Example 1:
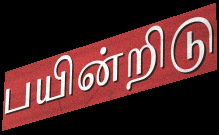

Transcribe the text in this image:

பயின்றிடு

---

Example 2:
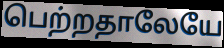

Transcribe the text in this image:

பெற்றதாலேயே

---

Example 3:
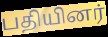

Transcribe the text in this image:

பதியினர்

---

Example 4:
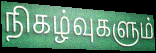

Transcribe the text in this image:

நிகழ்வுகளும்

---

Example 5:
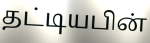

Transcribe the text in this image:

தட்டியபின்